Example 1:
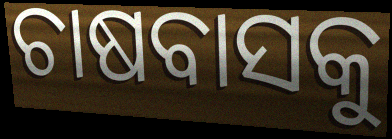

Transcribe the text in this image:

ଚାଷବାସକୁ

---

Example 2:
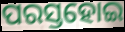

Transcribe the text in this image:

ପରସ୍ତହୋଇ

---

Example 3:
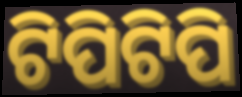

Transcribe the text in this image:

ଟିପିଟିପି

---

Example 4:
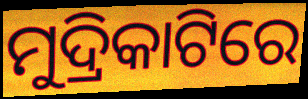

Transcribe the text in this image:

ମୁଦ୍ରିକାଟିରେ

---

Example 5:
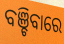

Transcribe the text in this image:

ବଞ୍ଚିବାରେ